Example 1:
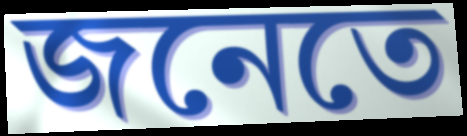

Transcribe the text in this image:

জনেতে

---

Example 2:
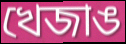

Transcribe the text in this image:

খেজাঙ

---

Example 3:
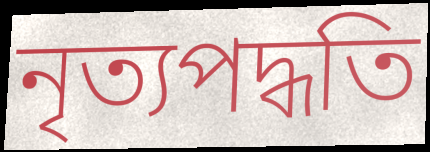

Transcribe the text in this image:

নৃত্যপদ্ধতি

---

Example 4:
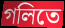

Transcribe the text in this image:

গলিতে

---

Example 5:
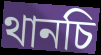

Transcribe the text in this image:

থানচি